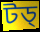
টড্